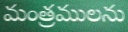
మంత్రములను